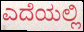
ಎದೆಯಲ್ಲಿ